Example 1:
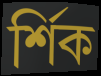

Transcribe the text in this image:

র্শিক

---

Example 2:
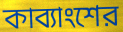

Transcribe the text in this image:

কাব্যাংশের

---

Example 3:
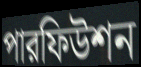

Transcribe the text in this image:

পারফিউশন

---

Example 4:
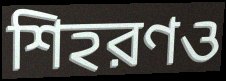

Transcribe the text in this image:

শিহরণও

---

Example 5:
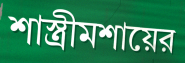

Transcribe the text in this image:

শাস্ত্রীমশায়ের